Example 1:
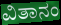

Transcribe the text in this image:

ವಿತಾನಂ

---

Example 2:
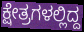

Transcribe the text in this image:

ಕ್ಷೇತ್ರಗಳಲ್ಲಿದ್ದ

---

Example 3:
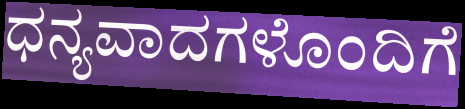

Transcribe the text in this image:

ಧನ್ಯವಾದಗಳೊಂದಿಗೆ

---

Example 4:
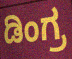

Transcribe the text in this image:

ಡಿಂಗ್ರ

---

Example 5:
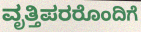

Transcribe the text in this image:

ವೃತ್ತಿಪರರೊಂದಿಗೆ